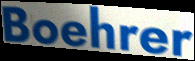
Boehrer